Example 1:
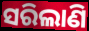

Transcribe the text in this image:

ସରିଲାଣି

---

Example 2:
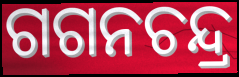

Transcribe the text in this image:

ଗଗନଚନ୍ଦ୍ର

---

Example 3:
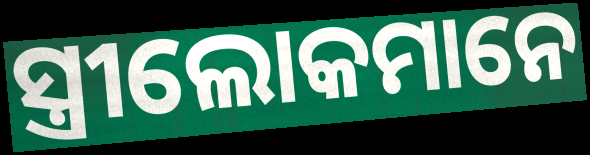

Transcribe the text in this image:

ସ୍ତ୍ରୀଲୋକମାନେ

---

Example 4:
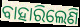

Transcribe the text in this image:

ବାହାରିଲେଣି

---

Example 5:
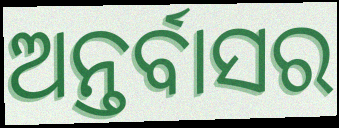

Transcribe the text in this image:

ଅନ୍ତର୍ବାସର